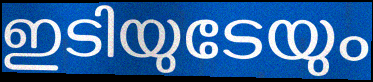
ഇടിയുടേയും